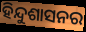
ହିନ୍ଦୁଶାସନର